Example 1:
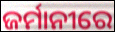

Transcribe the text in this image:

ଜର୍ମାନୀରେ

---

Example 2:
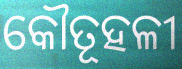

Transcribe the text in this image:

କୌତୂହଳୀ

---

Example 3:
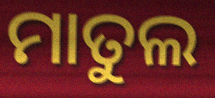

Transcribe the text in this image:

ମାତୁଲ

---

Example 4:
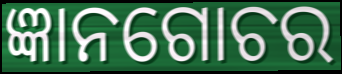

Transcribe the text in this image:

ଜ୍ଞାନଗୋଚର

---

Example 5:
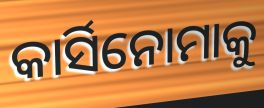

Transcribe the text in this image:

କାର୍ସିନୋମାକୁ